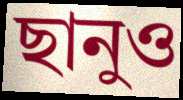
ছানুও